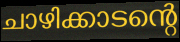
ചാഴിക്കാടന്റെ